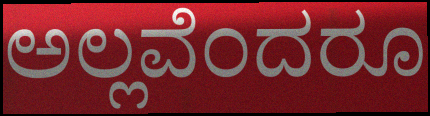
ಅಲ್ಲವೆಂದರೂ